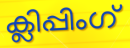
ക്ലിപ്പിംഗ്